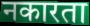
नकारता